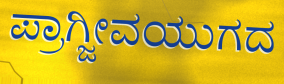
ಪ್ರಾಗ್ಜೀವಯುಗದ